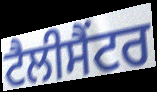
ਟੈਲੀਸੈਂਟਰ